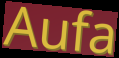
Aufa